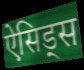
ऐसिड्स